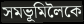
সমভূমিলৈকে